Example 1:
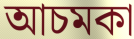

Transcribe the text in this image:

আচমকা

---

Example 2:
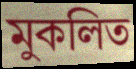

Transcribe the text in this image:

মুকলিত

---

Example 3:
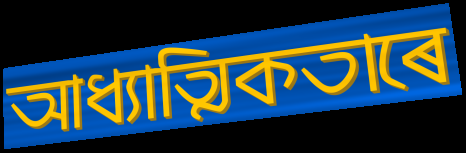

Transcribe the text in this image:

আধ্যাত্মিকতাৰে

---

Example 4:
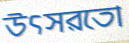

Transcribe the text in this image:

উৎসৱতো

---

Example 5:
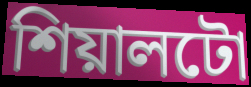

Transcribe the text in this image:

শিয়ালটো